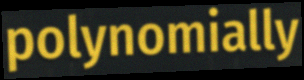
polynomially